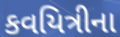
કવયિત્રીના